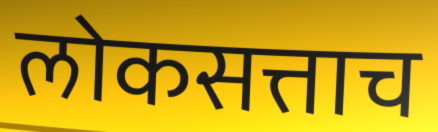
लोकसत्ताच